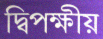
দ্বিপক্ষীয়